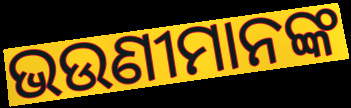
ଭଉଣୀମାନଙ୍କ